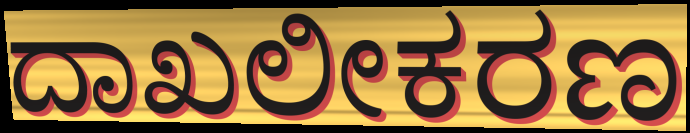
ದಾಖಲೀಕರಣ